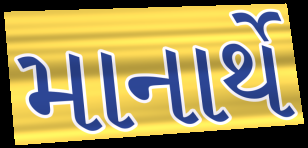
માનાર્થે